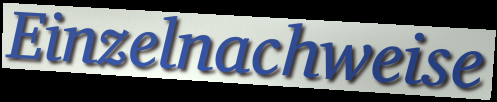
Einzelnachweise